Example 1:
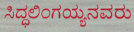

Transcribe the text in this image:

ಸಿದ್ಧಲಿಂಗಯ್ಯನವರು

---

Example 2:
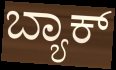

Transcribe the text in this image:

ಬ್ಯಾಕ್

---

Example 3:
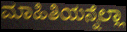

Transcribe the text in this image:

ಮಾಹಿತಿಯನ್ನೆಲ್ಲಾ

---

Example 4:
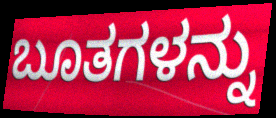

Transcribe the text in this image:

ಬೂತಗಳನ್ನು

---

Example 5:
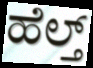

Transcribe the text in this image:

ಹೆಲ್ತ್